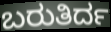
ಬರುತಿರ್ದ